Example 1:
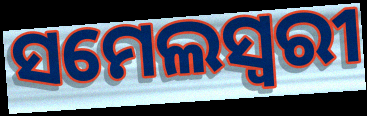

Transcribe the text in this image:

ସମେଲସ୍ୱରୀ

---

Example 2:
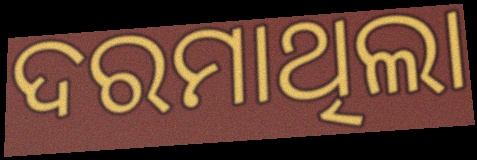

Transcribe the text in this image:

ଦରମାଥିଲା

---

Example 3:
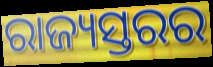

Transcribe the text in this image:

ରାଜ୍ୟସ୍ତରର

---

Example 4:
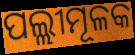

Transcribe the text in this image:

ପଲ୍ଲୀମୂଳକ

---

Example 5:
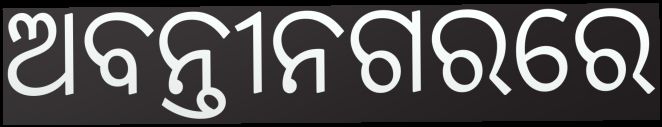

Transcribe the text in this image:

ଅବନ୍ତୀନଗରରେ